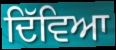
ਦਿੱਵਿਆ